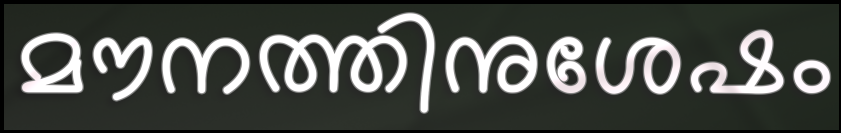
മൗനത്തിനുശേഷം